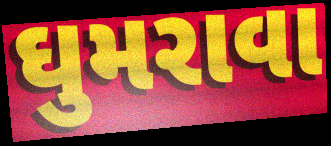
ઘુમરાવા